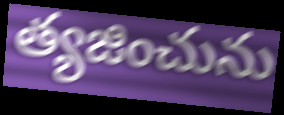
త్యజించును